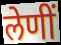
लेणीं